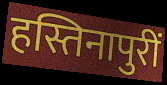
हस्तिनापुरीं